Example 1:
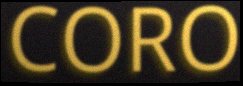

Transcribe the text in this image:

CORO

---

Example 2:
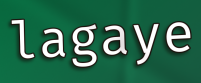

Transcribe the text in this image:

lagaye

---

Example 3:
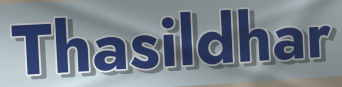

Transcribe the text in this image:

Thasildhar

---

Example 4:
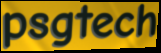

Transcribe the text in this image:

psgtech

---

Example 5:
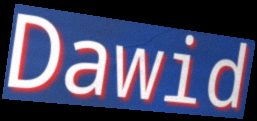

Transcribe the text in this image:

Dawid